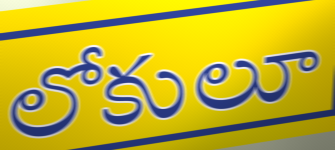
లోకులూ